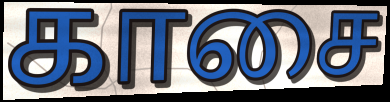
காசை